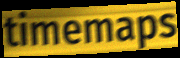
timemaps